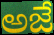
అజే